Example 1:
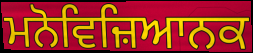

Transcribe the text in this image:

ਮਨੋਵਿਜ਼ਿਆਨਕ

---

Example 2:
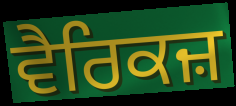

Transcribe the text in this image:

ਵੈਰਿਕਜ਼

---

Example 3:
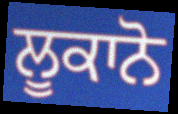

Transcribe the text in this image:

ਲੂਕਾਨੋ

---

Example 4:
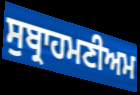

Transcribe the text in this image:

ਸੁਬ੍ਰਾਹਮਣੀਅਮ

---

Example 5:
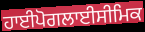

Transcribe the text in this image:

ਹਾਈਪੋਗਲਾਈਸੀਮਿਕ